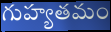
గుహ్యతమం